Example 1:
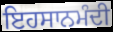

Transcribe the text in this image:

ਇਹਸਾਨਮੰਦੀ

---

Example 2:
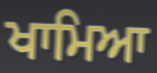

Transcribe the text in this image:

ਖਾਮਿਆ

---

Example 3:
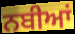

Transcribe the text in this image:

ਨਬੀਆਂ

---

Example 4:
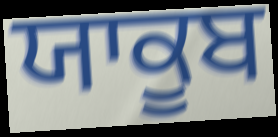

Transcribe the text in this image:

ਯਾਕੂਬ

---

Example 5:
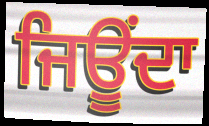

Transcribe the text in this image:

ਜਿਊਂਦਾ